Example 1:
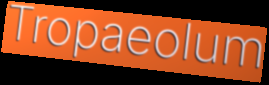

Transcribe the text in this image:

Tropaeolum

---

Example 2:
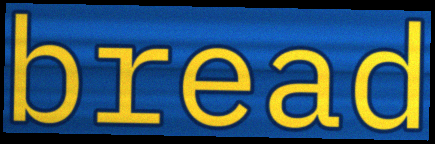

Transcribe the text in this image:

bread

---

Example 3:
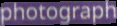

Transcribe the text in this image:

photograph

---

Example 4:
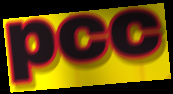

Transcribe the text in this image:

pcc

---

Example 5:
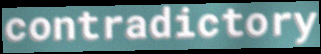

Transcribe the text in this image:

contradictory